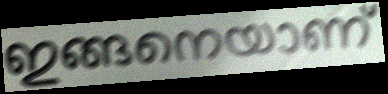
ഇങ്ങനെയാണ്